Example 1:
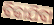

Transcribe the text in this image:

ବିକାଯିବା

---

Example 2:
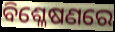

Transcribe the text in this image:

ବିଶ୍ଳେଷଣରେ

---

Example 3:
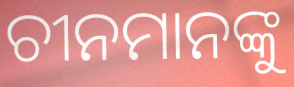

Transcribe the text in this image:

ଚୀନମାନଙ୍କୁ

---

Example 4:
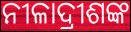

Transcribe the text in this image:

ନୀଳାଦ୍ରୀଶଙ୍କ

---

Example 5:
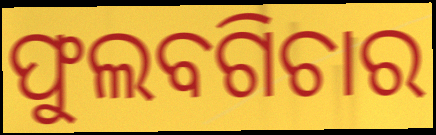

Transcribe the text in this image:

ଫୁଲବଗିଚାର